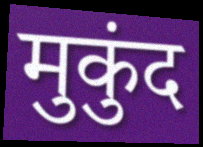
मुकुंद